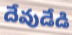
దేవుడేడి